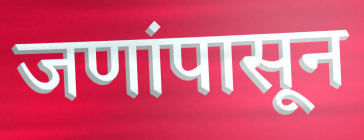
जणांपासून